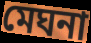
মেঘনা